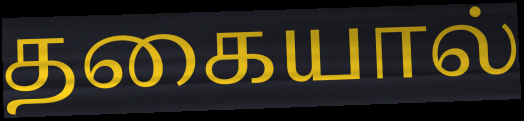
தகையால்